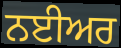
ਨਈਅਰ